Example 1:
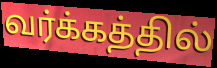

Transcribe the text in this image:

வர்க்கத்தில்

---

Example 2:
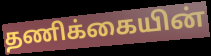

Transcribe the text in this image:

தணிக்கையின்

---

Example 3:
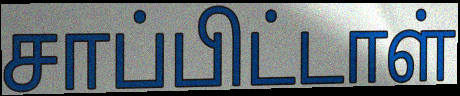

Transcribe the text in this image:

சாப்பிட்டாள்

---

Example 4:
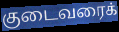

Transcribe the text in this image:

குடைவரைக்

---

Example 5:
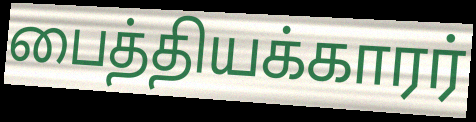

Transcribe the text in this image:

பைத்தியக்காரர்